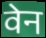
वेन